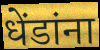
धेंडांना